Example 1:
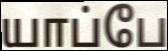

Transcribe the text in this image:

யாப்பே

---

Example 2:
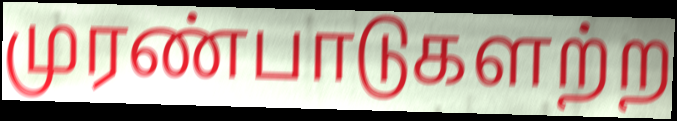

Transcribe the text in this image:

முரண்பாடுகளற்ற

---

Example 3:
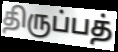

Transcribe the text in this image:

திருப்பத்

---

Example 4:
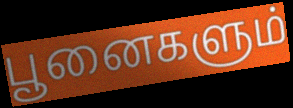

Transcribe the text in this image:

பூனைகளும்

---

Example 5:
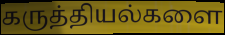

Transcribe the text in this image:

கருத்தியல்களை